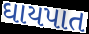
ઘાયપાત